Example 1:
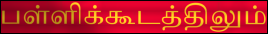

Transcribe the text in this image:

பள்ளிக்கூடத்திலும்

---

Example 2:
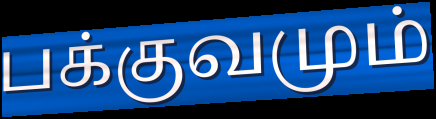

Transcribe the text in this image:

பக்குவமும்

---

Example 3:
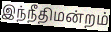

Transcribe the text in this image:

இந்நீதிமன்றம்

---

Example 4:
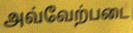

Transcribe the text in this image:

அவ்வேற்படை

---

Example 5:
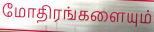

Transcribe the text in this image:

மோதிரங்களையும்